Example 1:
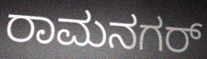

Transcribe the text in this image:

ರಾಮನಗರ್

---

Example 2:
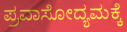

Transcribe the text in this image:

ಪ್ರವಾಸೋದ್ಯಮಕ್ಕೆ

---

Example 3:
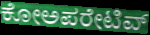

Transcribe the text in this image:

ಕೋಅಪರೇಟಿವ್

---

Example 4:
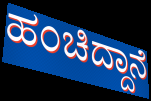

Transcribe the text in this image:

ಹಂಚಿದ್ದಾನೆ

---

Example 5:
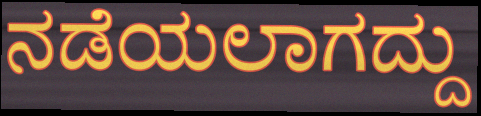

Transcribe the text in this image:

ನಡೆಯಲಾಗದ್ದು